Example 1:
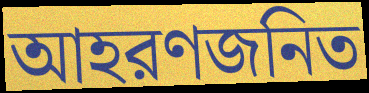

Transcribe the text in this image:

আহরণজনিত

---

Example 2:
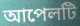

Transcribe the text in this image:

আপেলটি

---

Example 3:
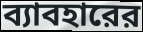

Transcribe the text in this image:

ব্যাবহারের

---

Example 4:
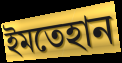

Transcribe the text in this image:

ইমতেহান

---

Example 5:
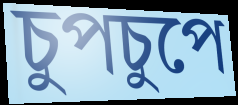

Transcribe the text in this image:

চুপচুপে